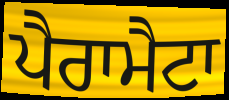
ਪੈਰਾਮੈਟਾ